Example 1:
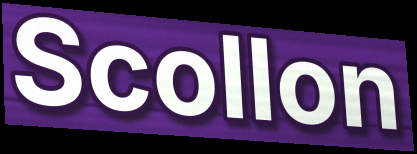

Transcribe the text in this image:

Scollon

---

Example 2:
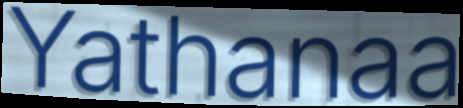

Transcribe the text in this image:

Yathanaa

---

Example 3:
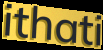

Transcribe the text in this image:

ithati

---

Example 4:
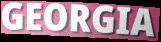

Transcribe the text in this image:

GEORGIA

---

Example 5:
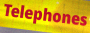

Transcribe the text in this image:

Telephones